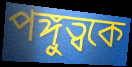
পঙ্গুত্বকে